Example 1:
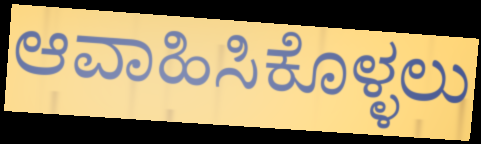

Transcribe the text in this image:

ಆವಾಹಿಸಿಕೊಳ್ಳಲು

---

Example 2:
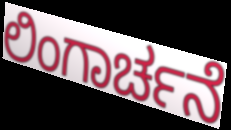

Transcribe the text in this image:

ಲಿಂಗಾರ್ಚನೆ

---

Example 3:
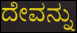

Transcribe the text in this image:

ದೇವನ್ನು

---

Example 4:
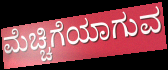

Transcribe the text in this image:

ಮೆಚ್ಚಿಗೆಯಾಗುವ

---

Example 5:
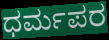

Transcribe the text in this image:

ಧರ್ಮಪರ